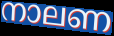
നാലണ